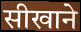
सीखाने